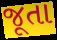
જૂતા